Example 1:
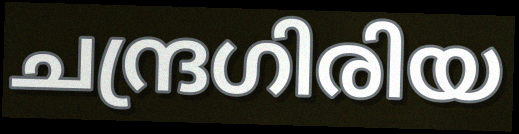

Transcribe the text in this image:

ചന്ദ്രഗിരിയ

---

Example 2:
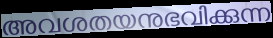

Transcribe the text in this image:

അവശതയനുഭവിക്കുന്ന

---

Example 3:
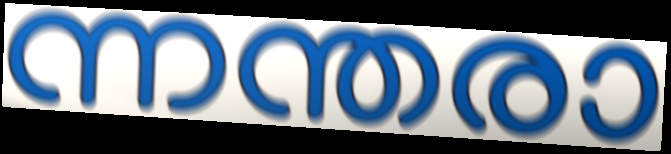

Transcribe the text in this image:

ന്നന്തരാ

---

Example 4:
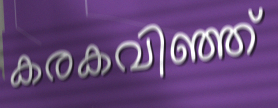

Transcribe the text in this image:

കരകവിഞ്ഞ്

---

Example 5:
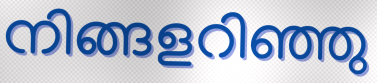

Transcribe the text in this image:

നിങ്ങളറിഞ്ഞു